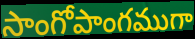
సాంగోపాంగముగా